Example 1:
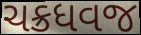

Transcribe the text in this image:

ચક્રધવજ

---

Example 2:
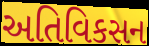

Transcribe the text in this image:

અતિવિકસન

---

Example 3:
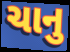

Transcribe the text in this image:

ચાનુ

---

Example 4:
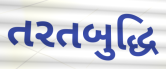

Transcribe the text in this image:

તરતબુદ્ધિ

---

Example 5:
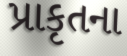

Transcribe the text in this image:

પ્રાકૃતના